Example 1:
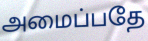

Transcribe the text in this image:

அமைப்பதே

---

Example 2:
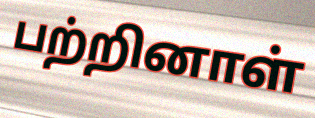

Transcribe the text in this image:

பற்றினாள்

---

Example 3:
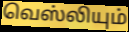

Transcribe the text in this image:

வெஸ்லியும்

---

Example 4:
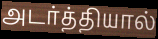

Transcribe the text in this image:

அடர்த்தியால்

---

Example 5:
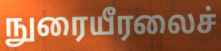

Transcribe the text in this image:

நுரையீரலைச்